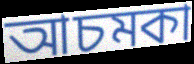
আচমকা